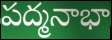
పద్మనాభా